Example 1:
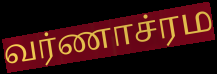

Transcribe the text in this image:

வர்ணாச்ரம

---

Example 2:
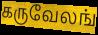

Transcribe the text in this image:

கருவேலங்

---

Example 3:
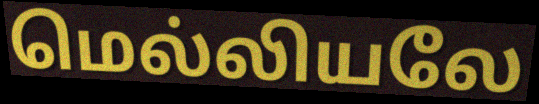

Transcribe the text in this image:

மெல்லியலே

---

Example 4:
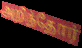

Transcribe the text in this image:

அறிந்தோர்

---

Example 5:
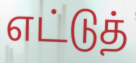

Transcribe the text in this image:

எட்டுத்